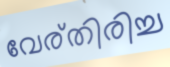
വേര്തിരിച്ച